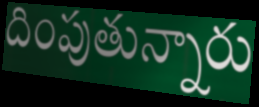
దింపుతున్నారు